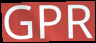
GPR